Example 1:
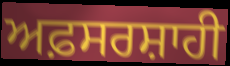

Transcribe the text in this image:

ਅਫ਼ਸਰਸ਼ਾਹੀ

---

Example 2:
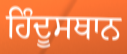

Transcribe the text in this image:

ਹਿੰਦੂਸਥਾਨ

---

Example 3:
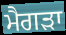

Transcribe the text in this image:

ਮੈਗੜਾ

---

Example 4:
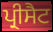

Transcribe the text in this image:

ਪ੍ਰੀਸੈਟ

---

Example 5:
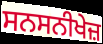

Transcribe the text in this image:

ਸਨਸਨੀਖੇਜ਼